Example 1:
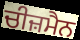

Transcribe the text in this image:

ਚੀਜ਼ਮੈਨ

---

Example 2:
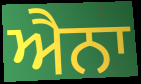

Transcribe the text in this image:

ਐਨਾ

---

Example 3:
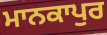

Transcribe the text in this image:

ਮਾਨਕਾਪੁਰ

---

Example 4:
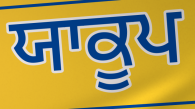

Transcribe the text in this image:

ਯਾਕੂਪ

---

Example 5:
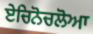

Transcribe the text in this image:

ਏਚਿਨੋਚਲੋਆ